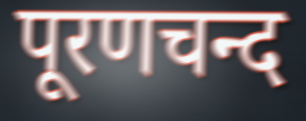
पूरणचन्द